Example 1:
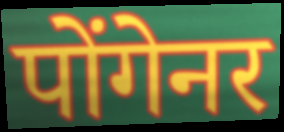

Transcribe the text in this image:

पोंगेनर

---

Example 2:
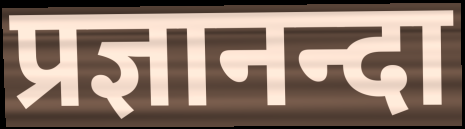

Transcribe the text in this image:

प्रज्ञानन्दा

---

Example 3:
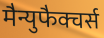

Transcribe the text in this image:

मैन्युफैक्चर्स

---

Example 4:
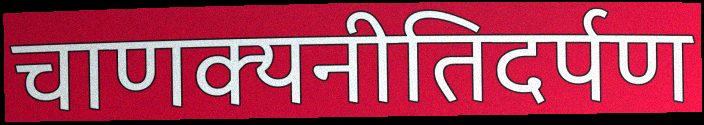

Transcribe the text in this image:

चाणक्यनीतिदर्पण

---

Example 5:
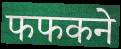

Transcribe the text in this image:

फफकने